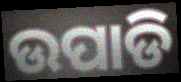
ଉପାଡି